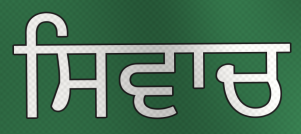
ਸਿਵਾਚ